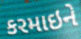
કરમાઇને